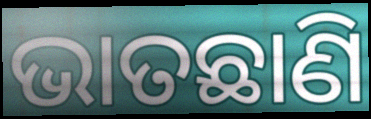
ଭାତଛାଣି